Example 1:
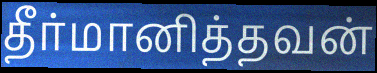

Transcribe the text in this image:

தீர்மானித்தவன்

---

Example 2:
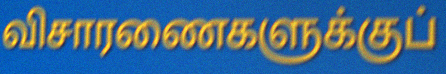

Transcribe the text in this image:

விசாரணைகளுக்குப்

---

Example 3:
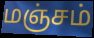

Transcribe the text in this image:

மஞ்சம்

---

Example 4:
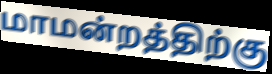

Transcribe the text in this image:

மாமன்றத்திற்கு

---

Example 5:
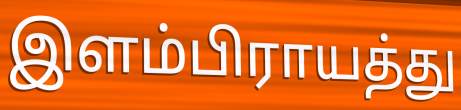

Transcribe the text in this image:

இளம்பிராயத்து